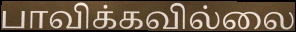
பாவிக்கவில்லை